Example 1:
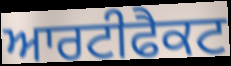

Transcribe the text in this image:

ਆਰਟੀਫੈਕਟ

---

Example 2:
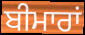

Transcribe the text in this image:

ਬੀਮਾਰਾਂ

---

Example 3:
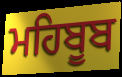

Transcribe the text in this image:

ਮਹਿਬੂਬ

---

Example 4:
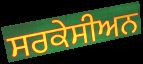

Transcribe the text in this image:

ਸਰਕੇਸੀਅਨ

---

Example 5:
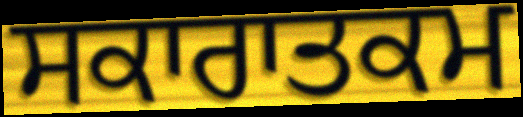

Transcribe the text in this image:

ਸਕਾਰਾਤਕਮ